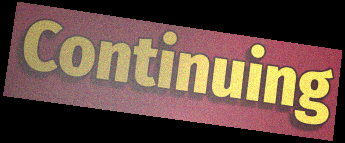
Continuing